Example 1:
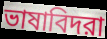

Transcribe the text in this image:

ভাষাবিদরা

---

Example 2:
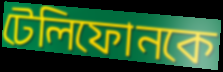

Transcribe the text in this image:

টেলিফোনকে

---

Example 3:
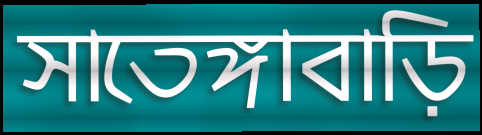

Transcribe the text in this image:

সাতেঙ্গাবাড়ি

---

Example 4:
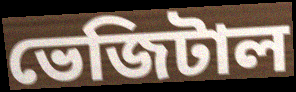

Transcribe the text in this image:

ভেজিটাল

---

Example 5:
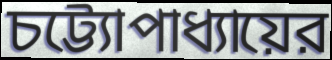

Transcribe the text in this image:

চট্ট্যোপাধ্যায়ের